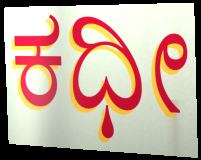
ಕಧೀ